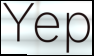
Yep